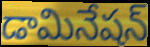
డామినేషన్